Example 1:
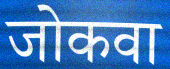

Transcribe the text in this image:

जोकवा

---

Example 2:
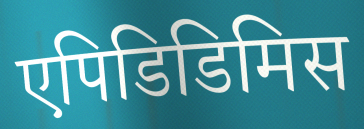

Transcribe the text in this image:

एपिडिडिमिस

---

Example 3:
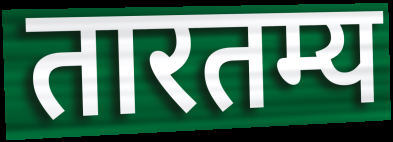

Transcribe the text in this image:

तारतम्य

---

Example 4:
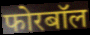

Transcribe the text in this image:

फोरबॉल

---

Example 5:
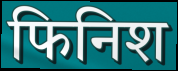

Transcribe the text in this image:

फिनिश